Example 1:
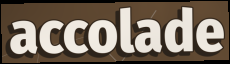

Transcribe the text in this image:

accolade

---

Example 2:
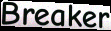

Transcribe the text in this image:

Breaker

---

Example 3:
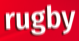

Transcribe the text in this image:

rugby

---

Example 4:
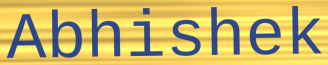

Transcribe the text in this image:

Abhishek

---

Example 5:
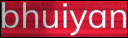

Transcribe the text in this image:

bhuiyan